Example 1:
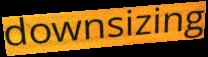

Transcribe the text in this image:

downsizing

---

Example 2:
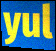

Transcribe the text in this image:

yul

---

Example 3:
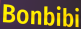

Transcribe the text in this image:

Bonbibi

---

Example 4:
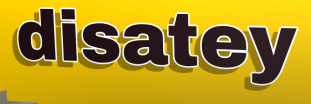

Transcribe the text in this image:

disatey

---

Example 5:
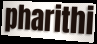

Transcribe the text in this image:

pharithi